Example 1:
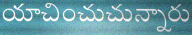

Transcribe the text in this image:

యాచించుచున్నారు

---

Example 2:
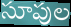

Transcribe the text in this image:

సూపుల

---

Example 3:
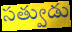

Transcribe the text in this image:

సత్వుడు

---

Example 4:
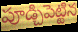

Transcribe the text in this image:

పూడ్చిపెట్టిన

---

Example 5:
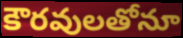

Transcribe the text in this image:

కౌరవులతోనూ